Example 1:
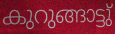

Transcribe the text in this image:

കുറുങ്ങാട്ടു്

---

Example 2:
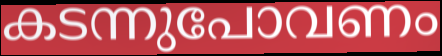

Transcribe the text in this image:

കടന്നുപോവണം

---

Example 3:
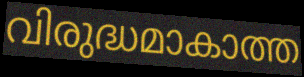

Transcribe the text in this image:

വിരുദ്ധമാകാത്ത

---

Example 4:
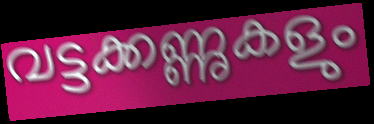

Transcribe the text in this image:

വട്ടക്കണ്ണുകളും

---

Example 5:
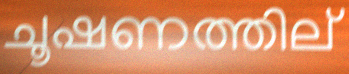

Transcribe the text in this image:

ചൂഷണത്തില്